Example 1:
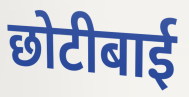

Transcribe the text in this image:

छोटीबाई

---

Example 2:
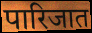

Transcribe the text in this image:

पारिजात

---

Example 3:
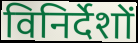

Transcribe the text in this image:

विनिर्देशों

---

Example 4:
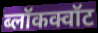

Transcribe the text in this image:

ब्लॉकक्वॉट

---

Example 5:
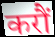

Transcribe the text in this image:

करौं